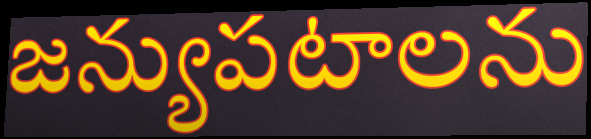
జన్యుపటాలను